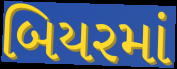
બિયરમાં